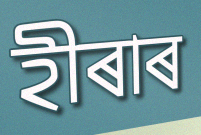
হীৰাৰ